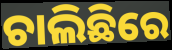
ଚାଲିଛିରେ